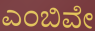
ಎಂಬಿವೇ